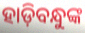
ହାଡ଼ିବନ୍ଧୁଙ୍କ